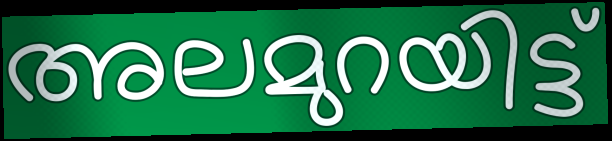
അലമുറയിട്ട്